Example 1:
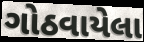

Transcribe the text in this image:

ગોઠવાયેલા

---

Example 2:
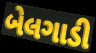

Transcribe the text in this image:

બેલગાડી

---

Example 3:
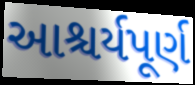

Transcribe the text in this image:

આશ્ચર્યપૂર્ણ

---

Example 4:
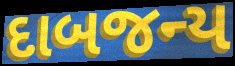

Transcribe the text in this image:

દાબજન્ય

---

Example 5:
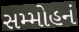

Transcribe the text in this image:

સમ્મોહનં